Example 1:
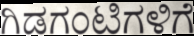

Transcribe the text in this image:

ಗಿಡಗಂಟಿಗಳಿಗೆ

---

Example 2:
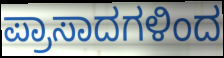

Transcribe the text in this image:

ಪ್ರಾಸಾದಗಳಿಂದ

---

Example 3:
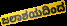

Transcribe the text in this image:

ಜಲಾಶಯದಿಂದ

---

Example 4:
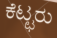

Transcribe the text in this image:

ಕೆಟ್ಟರು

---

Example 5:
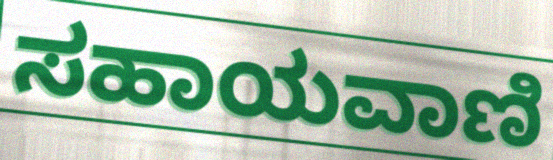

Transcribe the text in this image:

ಸಹಾಯವಾಣಿ